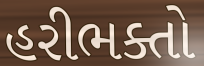
હરીભક્તો